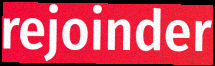
rejoinder